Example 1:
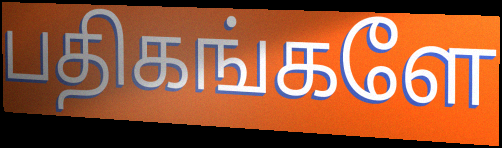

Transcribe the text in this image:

பதிகங்களே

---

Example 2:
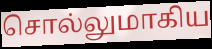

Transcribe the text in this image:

சொல்லுமாகிய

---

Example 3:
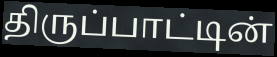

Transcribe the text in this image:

திருப்பாட்டின்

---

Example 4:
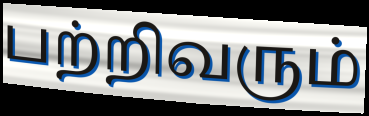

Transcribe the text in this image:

பற்றிவரும்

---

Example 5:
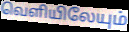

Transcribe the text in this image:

வெளியிலேயும்